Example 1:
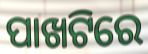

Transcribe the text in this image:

ପାଖଟିରେ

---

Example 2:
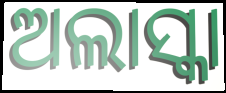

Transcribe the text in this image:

ଅଲାସ୍କା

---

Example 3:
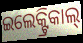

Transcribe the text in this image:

ଇଲେକ୍ଟ୍ରିକାଲ୍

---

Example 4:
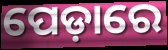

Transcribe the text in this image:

ପେଡ଼ାରେ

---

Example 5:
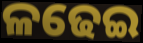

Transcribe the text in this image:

ଳଢେଇ